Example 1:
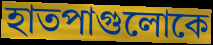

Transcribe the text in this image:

হাতপাগুলোকে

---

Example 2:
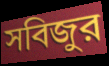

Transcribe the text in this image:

সবিজুর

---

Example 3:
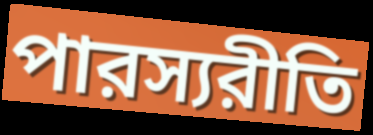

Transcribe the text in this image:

পারস্যরীতি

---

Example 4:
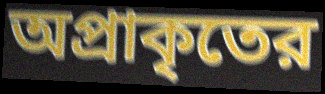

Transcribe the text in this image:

অপ্রাকৃতের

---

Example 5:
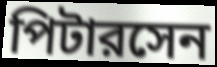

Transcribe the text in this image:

পিটারসেন